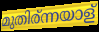
മുതിര്ന്നയാള്